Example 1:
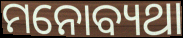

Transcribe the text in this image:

ମନୋବ୍ୟଥା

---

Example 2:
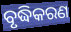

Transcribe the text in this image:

ବୃଦ୍ଧିକରଣ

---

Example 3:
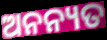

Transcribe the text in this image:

ଅନନ୍ୟତ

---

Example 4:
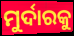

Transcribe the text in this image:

ମୁର୍ଦାରକୁ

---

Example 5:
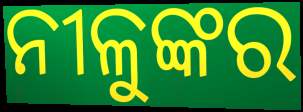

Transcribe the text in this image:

ନୀଳୁଙ୍କର